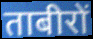
ताबीरों